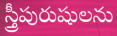
స్త్రీపురుషులను